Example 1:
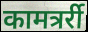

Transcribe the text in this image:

कामत्रर्री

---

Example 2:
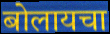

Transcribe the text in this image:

बोलायचा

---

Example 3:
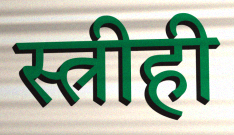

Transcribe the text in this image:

स्त्रीही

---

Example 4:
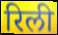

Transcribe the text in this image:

रिली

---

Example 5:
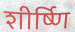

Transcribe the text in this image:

शीर्ष्णि